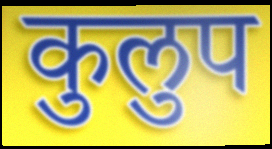
कुलुप